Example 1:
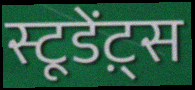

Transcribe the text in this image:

स्टूडेंट़्स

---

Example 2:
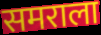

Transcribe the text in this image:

समराला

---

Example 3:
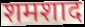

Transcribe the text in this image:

शमशाद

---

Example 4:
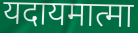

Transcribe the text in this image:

यदायमात्मा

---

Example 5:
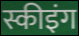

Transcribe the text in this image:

स्कीइंग